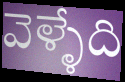
వెళ్ళేది